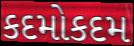
કદમોકદમ